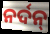
ନର୍ଦନ୍